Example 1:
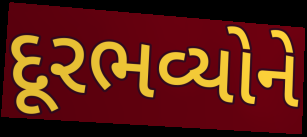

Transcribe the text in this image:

દૂરભવ્યોને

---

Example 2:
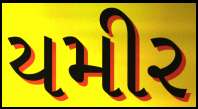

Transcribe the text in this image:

યમીર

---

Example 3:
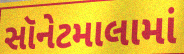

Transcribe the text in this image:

સૉનેટમાલામાં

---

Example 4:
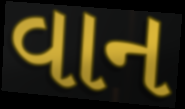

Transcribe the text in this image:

વાન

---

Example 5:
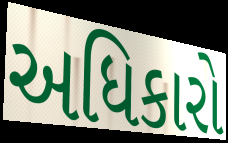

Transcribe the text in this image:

અધિકારો